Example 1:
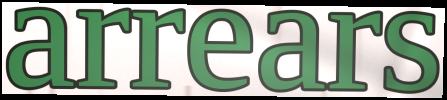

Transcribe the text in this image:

arrears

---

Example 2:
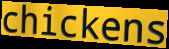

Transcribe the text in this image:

chickens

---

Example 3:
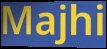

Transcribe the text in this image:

Majhi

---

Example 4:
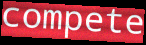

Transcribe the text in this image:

compete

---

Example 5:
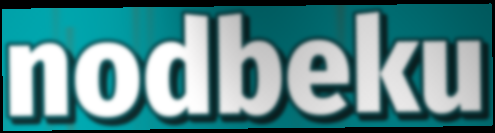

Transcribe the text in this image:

nodbeku